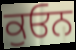
ਕੁਓਨ